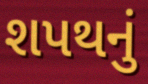
શપથનું